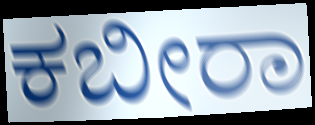
ಕಬೀರಾ